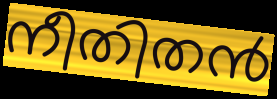
നീതിതൻ